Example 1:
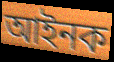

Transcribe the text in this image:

আইনক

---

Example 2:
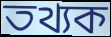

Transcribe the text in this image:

তথ্যক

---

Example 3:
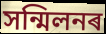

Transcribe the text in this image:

সন্মিলনৰ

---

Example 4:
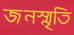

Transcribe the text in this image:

জনস্মৃতি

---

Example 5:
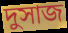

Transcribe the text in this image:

দুসাজ